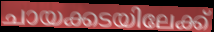
ചായക്കടയിലേക്ക്